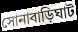
সোনাবাড়িঘাট